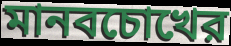
মানবচোখের